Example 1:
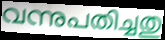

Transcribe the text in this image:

വന്നുപതിച്ചതു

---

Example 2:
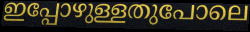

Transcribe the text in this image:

ഇപ്പോഴുള്ളതുപോലെ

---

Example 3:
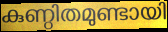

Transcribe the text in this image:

കുണ്ഠിതമുണ്ടായി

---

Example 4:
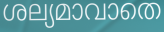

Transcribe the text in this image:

ശല്യമാവാതെ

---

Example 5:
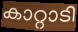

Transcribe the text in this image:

കാറ്റാടി